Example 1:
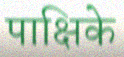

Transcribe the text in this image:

पाक्षिके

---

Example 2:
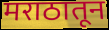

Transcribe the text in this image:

मराठातून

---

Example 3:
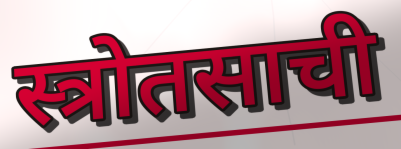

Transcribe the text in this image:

स्त्रोतसाची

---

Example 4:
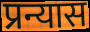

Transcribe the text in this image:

प्रन्यास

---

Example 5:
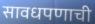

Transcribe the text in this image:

सावधपणाची